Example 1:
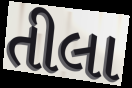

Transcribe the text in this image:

તીલા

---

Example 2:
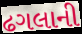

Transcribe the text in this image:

ઢગલાની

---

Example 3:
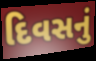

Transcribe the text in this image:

દિવસનું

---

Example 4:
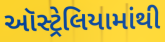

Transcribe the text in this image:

ઑસ્ટ્રેલિયામાંથી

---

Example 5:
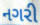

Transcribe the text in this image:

નગરી